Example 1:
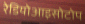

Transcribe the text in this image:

रेडियोआइसोटोप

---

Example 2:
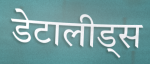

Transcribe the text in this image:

डेटालीड्स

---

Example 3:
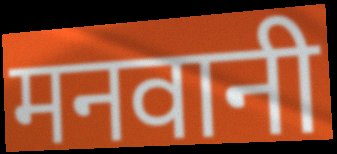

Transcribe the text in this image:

मनवानी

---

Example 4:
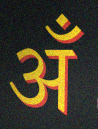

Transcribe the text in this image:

अँ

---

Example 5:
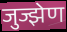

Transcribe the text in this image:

जुज्झेण